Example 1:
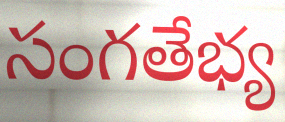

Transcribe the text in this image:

సంగతేభ్య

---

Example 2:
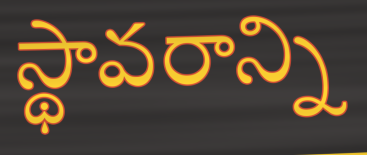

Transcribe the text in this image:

స్థావరాన్ని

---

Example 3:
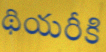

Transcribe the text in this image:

థియరీకి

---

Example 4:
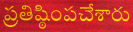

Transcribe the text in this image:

ప్రతిష్ఠింపచేశారు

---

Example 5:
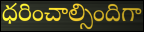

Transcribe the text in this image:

ధరించాల్సిందిగా